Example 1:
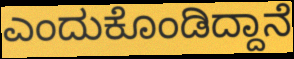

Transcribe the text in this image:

ಎಂದುಕೊಂಡಿದ್ದಾನೆ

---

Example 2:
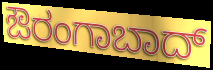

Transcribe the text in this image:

ಔರಂಗಾಬಾದ್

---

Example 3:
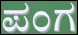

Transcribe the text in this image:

ಪಂಗ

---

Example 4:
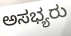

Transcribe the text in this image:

ಅಸಭ್ಯರು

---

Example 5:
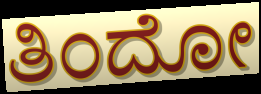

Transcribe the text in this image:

ತಿಂದೋ